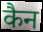
कैन